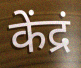
केंद्रं